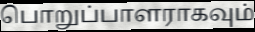
பொறுப்பாளராகவும்